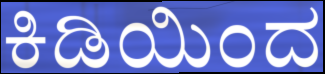
ಕಿಡಿಯಿಂದ